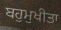
ਬਹੁਮੁਖੀਤਾ